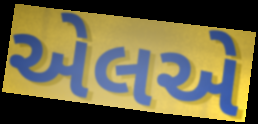
એલએ